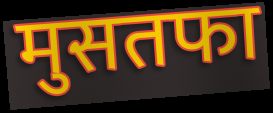
मुसतफा